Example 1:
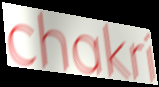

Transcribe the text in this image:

chakri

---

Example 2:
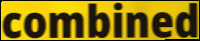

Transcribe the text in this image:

combined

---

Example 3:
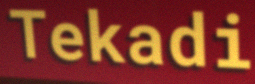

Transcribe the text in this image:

Tekadi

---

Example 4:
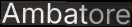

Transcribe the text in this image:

Ambatore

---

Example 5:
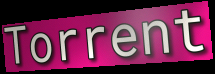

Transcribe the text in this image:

Torrent